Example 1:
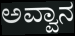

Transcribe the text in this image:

ಅವ್ವಾನ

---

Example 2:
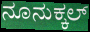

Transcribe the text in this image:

ನೂನುಕ್ಕಲ್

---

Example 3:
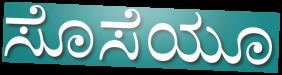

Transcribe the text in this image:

ಸೊಸೆಯೂ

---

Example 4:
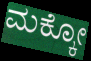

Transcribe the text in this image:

ಮಕ್ಕೋ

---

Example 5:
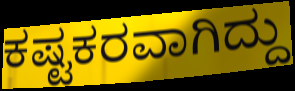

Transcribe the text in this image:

ಕಷ್ಟಕರವಾಗಿದ್ದು